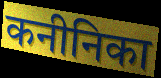
कनीनिका